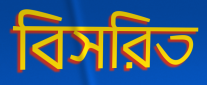
বিসরিত